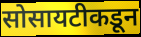
सोसायटीकडून